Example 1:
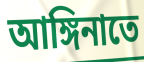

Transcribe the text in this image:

আঙ্গিনাতে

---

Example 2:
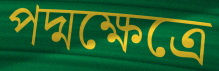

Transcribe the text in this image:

পদ্মক্ষেত্রে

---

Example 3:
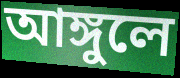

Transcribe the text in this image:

আঙ্গুলে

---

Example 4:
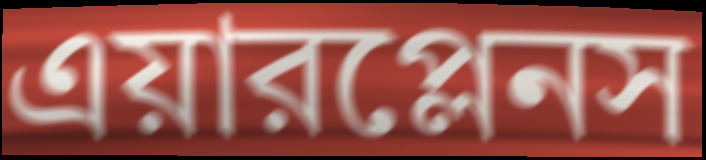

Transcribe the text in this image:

এয়ারপ্লেনস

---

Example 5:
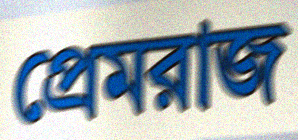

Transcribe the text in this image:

প্রেমরাজ